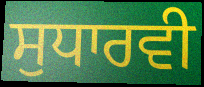
ਸੁਧਾਰਵੀ